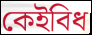
কেইবিধ